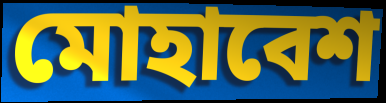
মোহাবেশ